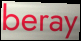
beray